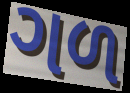
ગળ